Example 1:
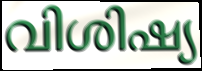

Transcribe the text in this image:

വിശിഷ്യ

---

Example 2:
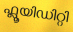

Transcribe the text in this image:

ഫ്ലൂയിഡിറ്റി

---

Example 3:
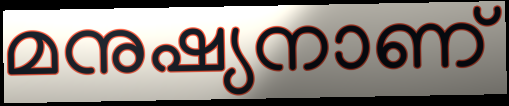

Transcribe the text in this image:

മനുഷ്യനാണ്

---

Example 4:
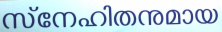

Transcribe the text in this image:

സ്‌നേഹിതനുമായ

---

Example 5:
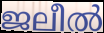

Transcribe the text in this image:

ജലീൽ